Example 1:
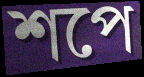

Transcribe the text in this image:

শপে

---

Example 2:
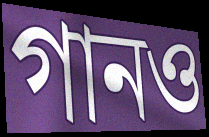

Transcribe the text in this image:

গানও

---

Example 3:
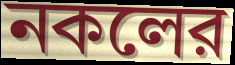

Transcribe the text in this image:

নকলের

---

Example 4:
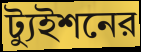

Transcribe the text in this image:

ট্যুইশনের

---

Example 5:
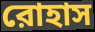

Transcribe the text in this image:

রোহাস